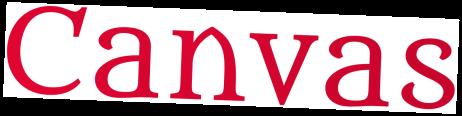
Canvas